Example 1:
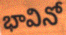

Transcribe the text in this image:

భావినో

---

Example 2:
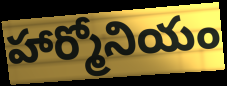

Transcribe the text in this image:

హార్మోనియం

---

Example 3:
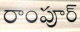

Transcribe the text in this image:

రాంపూర్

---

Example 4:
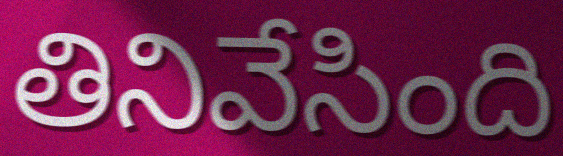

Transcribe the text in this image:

తినివేసింది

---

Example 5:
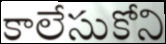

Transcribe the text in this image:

కాలేసుకోని